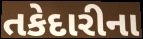
તકેદારીના